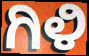
ಗಿಳಿ